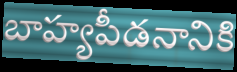
బాహ్యపీడనానికి